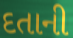
દતાની